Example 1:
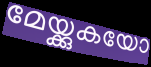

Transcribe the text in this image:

മേയ്ക്കുകയോ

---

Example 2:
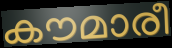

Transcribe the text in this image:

കൗമാരീ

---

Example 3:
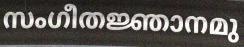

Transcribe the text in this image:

സംഗീതജ്ഞാനമു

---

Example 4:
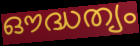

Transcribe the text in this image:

ഔദ്ധത്യം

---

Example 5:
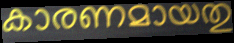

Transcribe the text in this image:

കാരണമായതു